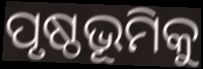
ପୃଷ୍ଠଭୂମିକୁ